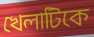
খেলাটিকে